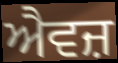
ਐਵਜ਼